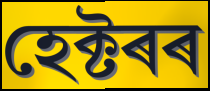
হেক্টৰৰ